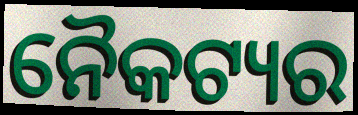
ନୈକଟ୍ୟର